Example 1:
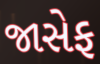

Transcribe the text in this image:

જાસેફ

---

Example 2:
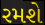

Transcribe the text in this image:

રમશે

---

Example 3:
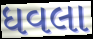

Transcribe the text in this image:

ધવલા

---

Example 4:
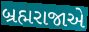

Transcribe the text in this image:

બ્રહ્મરાજાએ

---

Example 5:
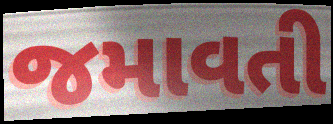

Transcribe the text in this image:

જમાવતી